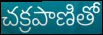
చక్రపాణితో